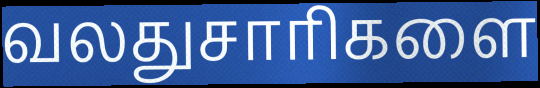
வலதுசாரிகளை